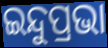
ଇନ୍ଦୁପ୍ରଭା